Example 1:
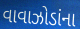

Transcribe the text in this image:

વાવાઝોડાંના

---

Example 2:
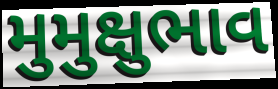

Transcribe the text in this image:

મુમુક્ષુભાવ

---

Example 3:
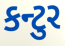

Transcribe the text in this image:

કન્ટુર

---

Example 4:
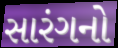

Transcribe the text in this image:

સારંગનો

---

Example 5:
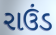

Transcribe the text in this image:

રાઉંડ